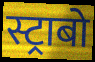
स्ट्राबो